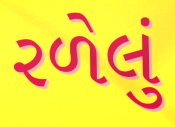
રળેલું